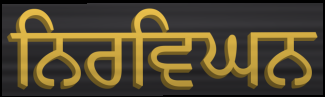
ਨਿਰਵਿਘਨ